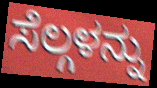
ಸೆಲ್ಗಳನ್ನು